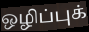
ஒழிப்புக்